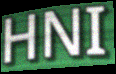
HNI